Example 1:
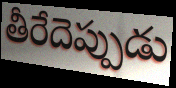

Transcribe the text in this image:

తీరేదెప్పుడు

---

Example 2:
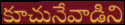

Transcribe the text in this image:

కూచునేవాడిని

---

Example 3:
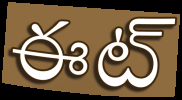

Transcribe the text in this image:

ఈట్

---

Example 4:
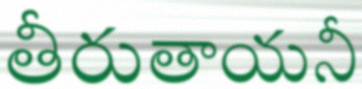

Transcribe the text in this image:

తీరుతాయనీ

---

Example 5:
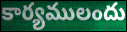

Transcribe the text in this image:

కార్యములందు